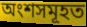
অংশসমূহত